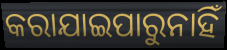
କରାଯାଇପାରୁନାହିଁ